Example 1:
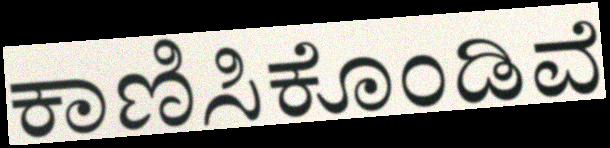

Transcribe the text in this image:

ಕಾಣಿಸಿಕೊಂಡಿವೆ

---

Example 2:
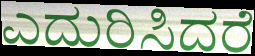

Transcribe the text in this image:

ಎದುರಿಸಿದರೆ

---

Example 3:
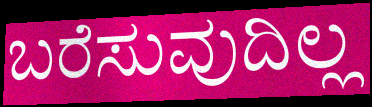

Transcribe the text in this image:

ಬರೆಸುವುದಿಲ್ಲ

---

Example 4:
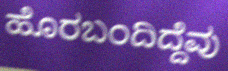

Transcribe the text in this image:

ಹೊರಬಂದಿದ್ದೆವು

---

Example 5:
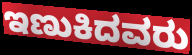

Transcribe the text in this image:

ಇಣುಕಿದವರು